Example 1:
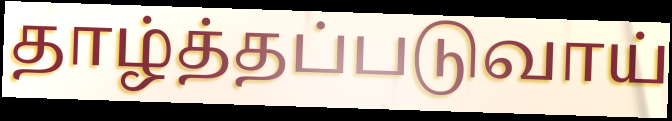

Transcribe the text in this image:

தாழ்த்தப்படுவாய்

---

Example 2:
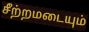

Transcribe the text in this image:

சீற்றமடையும்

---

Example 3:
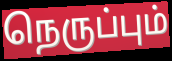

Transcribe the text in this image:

நெருப்பும்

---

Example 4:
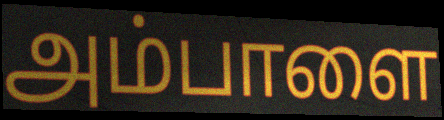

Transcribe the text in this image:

அம்பாளை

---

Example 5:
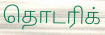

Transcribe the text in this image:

தொடரிக்